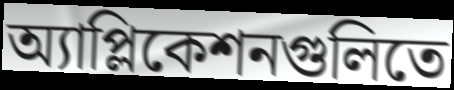
অ্যাপ্লিকেশনগুলিতে